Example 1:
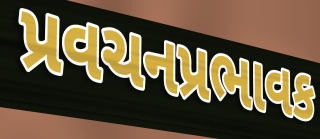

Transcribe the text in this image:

પ્રવચનપ્રભાવક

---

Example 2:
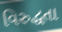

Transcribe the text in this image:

વિરુદ્ધતા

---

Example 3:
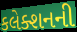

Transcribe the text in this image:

કલેક્શનની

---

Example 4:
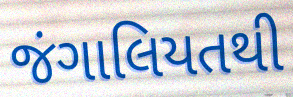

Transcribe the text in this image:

જંગાલિયતથી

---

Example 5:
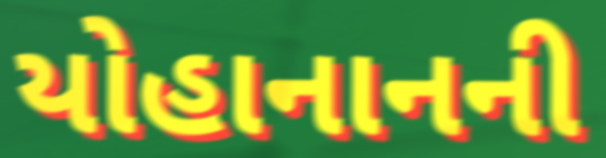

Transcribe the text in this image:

યોહાનાનની